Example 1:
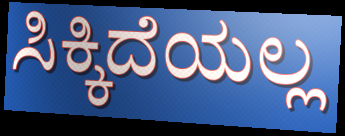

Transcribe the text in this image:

ಸಿಕ್ಕಿದೆಯಲ್ಲ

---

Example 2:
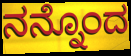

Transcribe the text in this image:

ನನ್ನೊಂದ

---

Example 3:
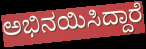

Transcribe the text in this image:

ಅಭಿನಯಿಸಿದ್ದಾರೆ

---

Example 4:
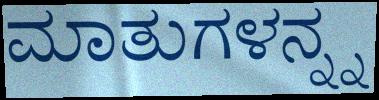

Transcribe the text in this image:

ಮಾತುಗಳನ್ನ್ನ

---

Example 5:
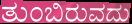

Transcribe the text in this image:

ತುಂಬಿರುವದು